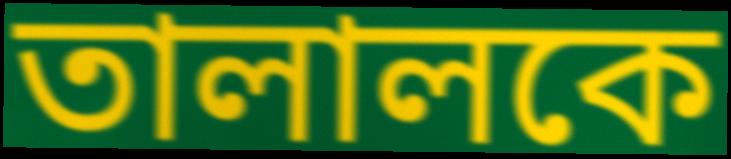
তালালকে